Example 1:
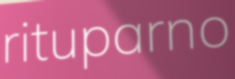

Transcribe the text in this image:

rituparno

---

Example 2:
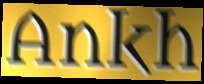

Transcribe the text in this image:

Ankh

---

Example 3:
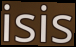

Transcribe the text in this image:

isis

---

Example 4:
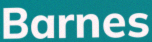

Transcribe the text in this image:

Barnes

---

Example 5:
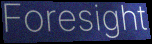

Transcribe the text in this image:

Foresight